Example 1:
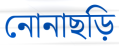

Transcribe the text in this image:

নোনাছড়ি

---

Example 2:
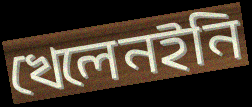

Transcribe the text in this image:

খেলেনইনি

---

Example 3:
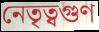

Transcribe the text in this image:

নেতৃত্বগুণ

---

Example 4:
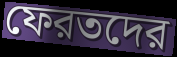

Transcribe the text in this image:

ফেরতদের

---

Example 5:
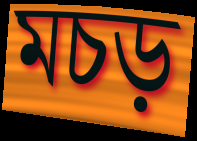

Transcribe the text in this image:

মচড়